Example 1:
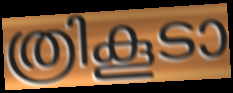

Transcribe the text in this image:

ത്രികൂടാ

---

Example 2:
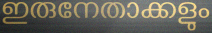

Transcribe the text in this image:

ഇരുനേതാക്കളും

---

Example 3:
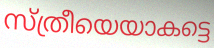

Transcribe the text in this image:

സ്ത്രീയെയാകട്ടെ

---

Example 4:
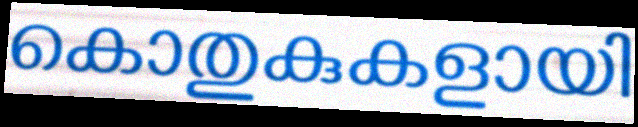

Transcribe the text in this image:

കൊതുകുകളായി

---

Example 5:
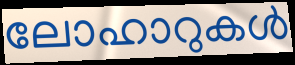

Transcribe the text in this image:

ലോഹാറുകൾ